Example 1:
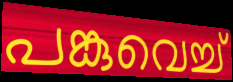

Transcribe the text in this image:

പങ്കുവെച്ച്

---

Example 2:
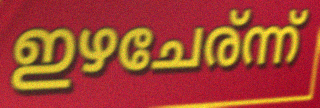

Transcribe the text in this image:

ഇഴചേര്ന്ന്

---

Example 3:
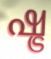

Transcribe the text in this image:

ഷ്ട്ര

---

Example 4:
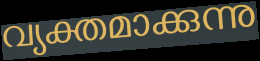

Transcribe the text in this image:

വ്യക്തമാക്കുന്നു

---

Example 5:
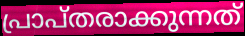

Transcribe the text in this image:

പ്രാപ്തരാക്കുന്നത്